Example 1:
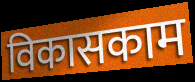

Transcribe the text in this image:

विकासकाम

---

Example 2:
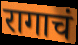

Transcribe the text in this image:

रागाचं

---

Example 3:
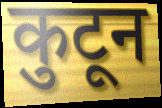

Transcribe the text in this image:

कुटून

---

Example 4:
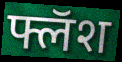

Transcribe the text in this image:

फ्लॅश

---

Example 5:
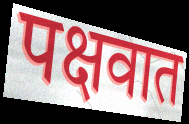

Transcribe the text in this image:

पक्षवात